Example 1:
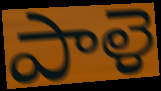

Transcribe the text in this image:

పాళె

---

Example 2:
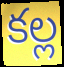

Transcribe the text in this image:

కల్ల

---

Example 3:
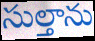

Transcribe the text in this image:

సుల్తాను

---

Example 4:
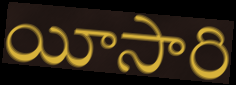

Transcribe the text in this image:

యీసారి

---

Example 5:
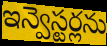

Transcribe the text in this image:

ఇన్వెస్టర్లను